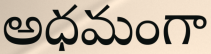
అధమంగా